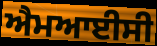
ਐਮਆਈਸੀ